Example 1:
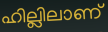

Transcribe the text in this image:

ഹില്ലിലാണ്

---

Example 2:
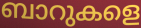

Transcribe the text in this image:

ബാറുകളെ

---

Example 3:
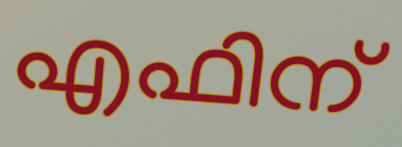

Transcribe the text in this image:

എഫിന്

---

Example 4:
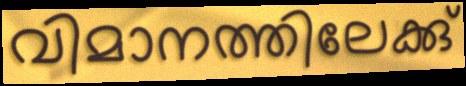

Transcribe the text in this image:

വിമാനത്തിലേക്കു്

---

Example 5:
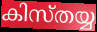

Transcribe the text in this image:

കിസ്തയ്യ